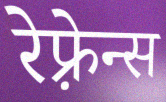
रेफ़्रेन्स